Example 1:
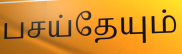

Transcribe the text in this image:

பசய்தேயும்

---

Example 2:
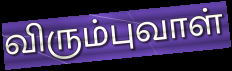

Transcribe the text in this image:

விரும்புவாள்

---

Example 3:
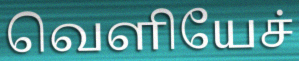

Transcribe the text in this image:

வெளியேச்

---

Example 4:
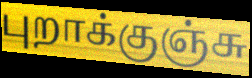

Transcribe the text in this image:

புறாக்குஞ்சு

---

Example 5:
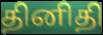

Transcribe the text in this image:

தினிதி